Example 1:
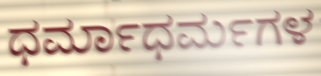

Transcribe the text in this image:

ಧರ್ಮಾಧರ್ಮಗಳ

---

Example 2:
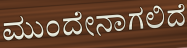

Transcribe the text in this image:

ಮುಂದೇನಾಗಲಿದೆ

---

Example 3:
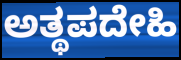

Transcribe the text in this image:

ಅತ್ಥಪದೇಹಿ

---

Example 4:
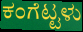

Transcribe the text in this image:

ಕಂಗೆಟ್ಟಳು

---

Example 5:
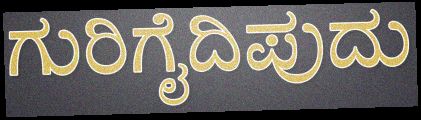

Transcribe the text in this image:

ಗುರಿಗೈದಿಪುದು